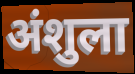
अंशुला